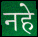
नहे